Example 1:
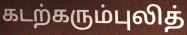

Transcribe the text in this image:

கடற்கரும்புலித்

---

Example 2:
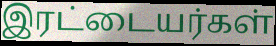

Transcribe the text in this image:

இரட்டையர்கள்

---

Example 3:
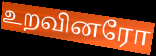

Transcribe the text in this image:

உறவினரோ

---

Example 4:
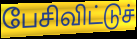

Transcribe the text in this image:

பேசிவிட்டுச்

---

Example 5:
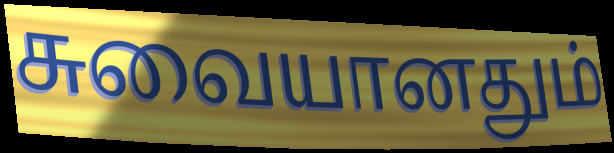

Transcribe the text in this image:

சுவையானதும்